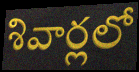
శివార్లలో